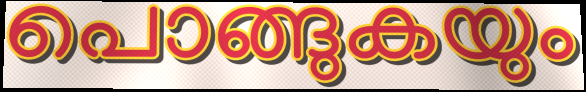
പൊങ്ങുകയും